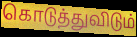
கொடுத்துவிடும்